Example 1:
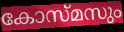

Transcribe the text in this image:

കോസ്മസും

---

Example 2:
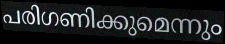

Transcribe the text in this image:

പരിഗണിക്കുമെന്നും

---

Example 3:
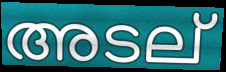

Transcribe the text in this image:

അടല്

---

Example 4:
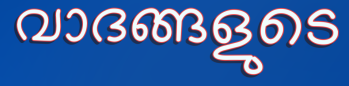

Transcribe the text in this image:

വാദങ്ങളുടെ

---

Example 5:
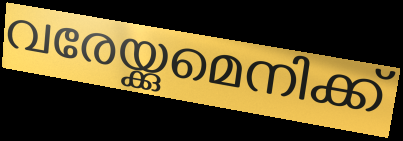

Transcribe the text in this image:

വരേയ്ക്കുമെനിക്ക്